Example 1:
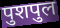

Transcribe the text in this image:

पुशपुल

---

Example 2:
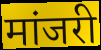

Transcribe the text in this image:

मांजरी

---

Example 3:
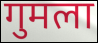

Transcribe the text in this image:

गुमला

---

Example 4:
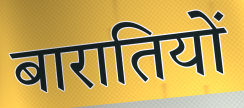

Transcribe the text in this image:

बारातियों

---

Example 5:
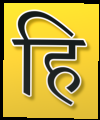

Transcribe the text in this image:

हि